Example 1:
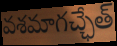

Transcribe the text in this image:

వశమాగచ్ఛేత్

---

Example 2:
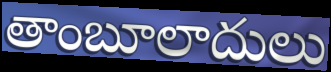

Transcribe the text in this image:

తాంబూలాదులు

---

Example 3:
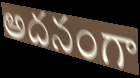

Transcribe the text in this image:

అదనంగా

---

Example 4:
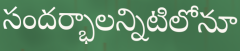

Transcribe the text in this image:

సందర్భాలన్నిటిలోనూ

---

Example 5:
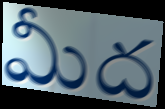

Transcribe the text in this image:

మీద